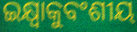
ଇକ୍ଷ୍ୱାକୁବଂଶୀୟ